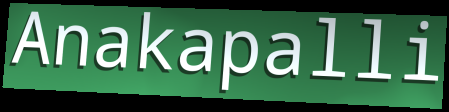
Anakapalli